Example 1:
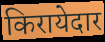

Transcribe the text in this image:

किरायेदार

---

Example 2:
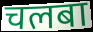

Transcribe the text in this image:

चलबा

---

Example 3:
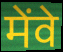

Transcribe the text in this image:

मेंवे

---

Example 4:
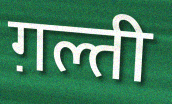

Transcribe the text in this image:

ग़ल्ती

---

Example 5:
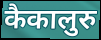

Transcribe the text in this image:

कैकालुरु